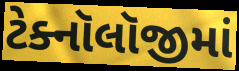
ટેક્નૉલૉજીમાં